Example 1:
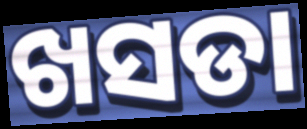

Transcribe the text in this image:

ଖସଡା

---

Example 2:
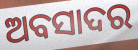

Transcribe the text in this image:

ଅବସାଦର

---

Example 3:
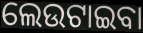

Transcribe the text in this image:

ଲେଉଟାଇବା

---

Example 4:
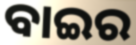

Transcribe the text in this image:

ବାଇର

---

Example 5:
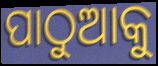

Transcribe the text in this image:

ପାଠୁଆକୁ